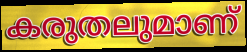
കരുതലുമാണ്